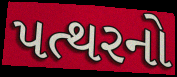
પત્થરનો